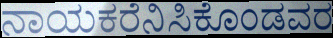
ನಾಯಕರೆನಿಸಿಕೊಂಡವರ